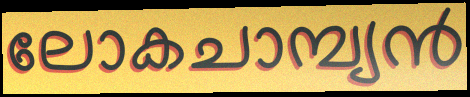
ലോകചാമ്പ്യൻ